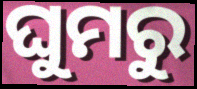
ଘୁମରୁ